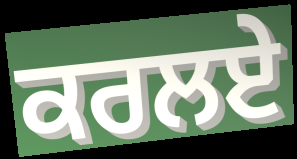
ਕਰਲਏ